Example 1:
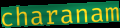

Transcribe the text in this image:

charanam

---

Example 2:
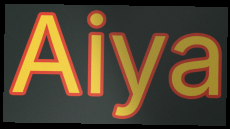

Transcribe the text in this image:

Aiya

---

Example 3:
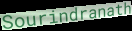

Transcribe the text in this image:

Sourindranath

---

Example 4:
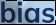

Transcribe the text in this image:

bias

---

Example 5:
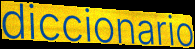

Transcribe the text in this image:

diccionario